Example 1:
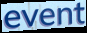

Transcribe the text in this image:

event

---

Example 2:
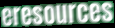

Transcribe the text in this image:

eresources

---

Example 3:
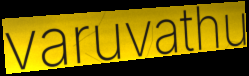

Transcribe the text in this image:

varuvathu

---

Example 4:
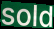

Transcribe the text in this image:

sold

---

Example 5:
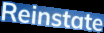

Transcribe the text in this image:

Reinstate